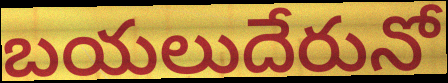
బయలుదేరునో